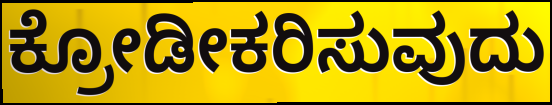
ಕ್ರೋಡೀಕರಿಸುವುದು